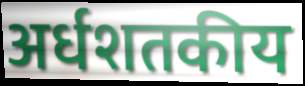
अर्धशतकीय